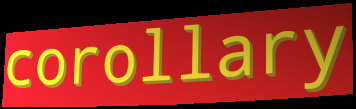
corollary